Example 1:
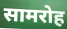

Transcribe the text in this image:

सामरोह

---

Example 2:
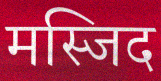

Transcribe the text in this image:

मस्जिद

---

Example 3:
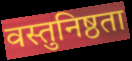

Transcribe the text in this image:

वस्तुनिष्ठता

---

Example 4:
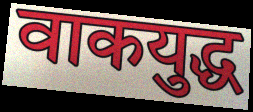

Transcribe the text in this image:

वाकयुद्ध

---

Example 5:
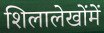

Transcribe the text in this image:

शिलालेखोंमें